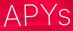
APYs